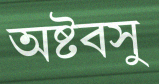
অষ্টবসু